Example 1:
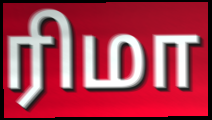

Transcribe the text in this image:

ரிமா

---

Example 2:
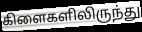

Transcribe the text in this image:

கிளைகளிலிருந்து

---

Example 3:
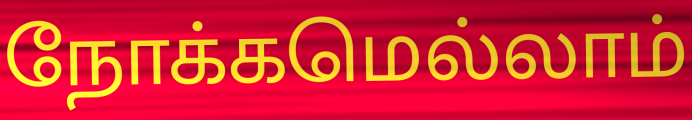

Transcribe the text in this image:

நோக்கமெல்லாம்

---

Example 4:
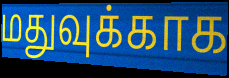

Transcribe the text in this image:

மதுவுக்காக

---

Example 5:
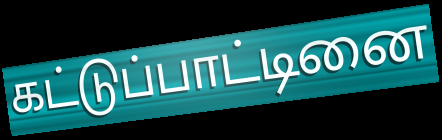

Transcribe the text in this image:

கட்டுப்பாட்டினை